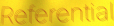
Referential